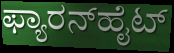
ಫ್ಯಾರನ್‌ಹೈಟ್